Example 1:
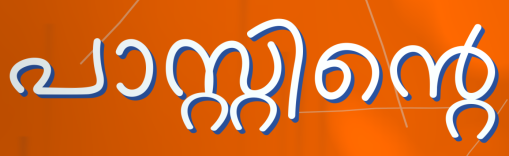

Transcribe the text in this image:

പാസ്റ്റിന്റെ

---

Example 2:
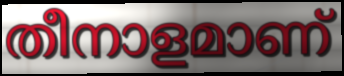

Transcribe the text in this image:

തീനാളമാണ്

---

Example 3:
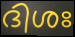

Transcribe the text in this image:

ദിശഃ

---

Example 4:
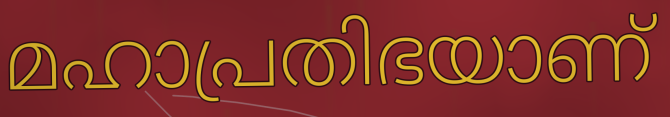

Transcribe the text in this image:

മഹാപ്രതിഭയാണ്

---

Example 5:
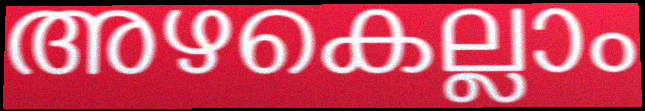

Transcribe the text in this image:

അഴകെല്ലാം